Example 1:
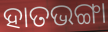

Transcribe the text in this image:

ହାତଭଙ୍ଗା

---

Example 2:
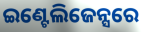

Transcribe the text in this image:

ଇଣ୍ଟେଲିଜେନ୍ସରେ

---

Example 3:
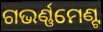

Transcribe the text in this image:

ଗଭର୍ଣ୍ଣମେଣ୍ଟ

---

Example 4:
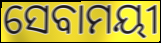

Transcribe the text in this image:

ସେବାମୟୀ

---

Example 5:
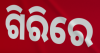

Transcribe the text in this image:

ଗିରିରେ